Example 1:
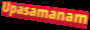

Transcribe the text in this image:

Upasamanam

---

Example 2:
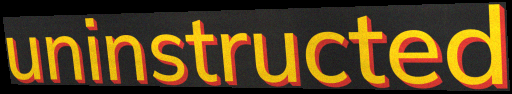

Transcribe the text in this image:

uninstructed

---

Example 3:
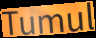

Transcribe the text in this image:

Tumul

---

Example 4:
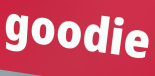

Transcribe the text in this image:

goodie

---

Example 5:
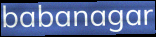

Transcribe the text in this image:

babanagar